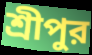
শ্রীপুর